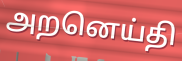
அறனெய்தி